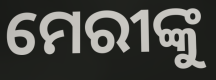
ମେରୀଙ୍କୁ